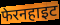
फेरनहाइट